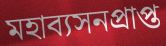
মহাব্যসনপ্রাপ্ত